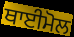
ਥਾਈਮੋਲ